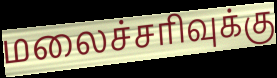
மலைச்சரிவுக்கு